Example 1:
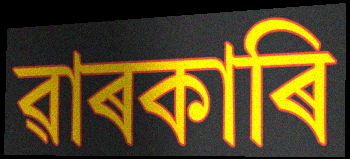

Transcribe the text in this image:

ৱাৰকাৰি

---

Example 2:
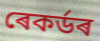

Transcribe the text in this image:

ৰেকৰ্ডৰ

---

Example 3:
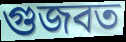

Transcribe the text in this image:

গুজবত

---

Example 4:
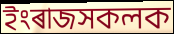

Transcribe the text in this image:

ইংৰাজসকলক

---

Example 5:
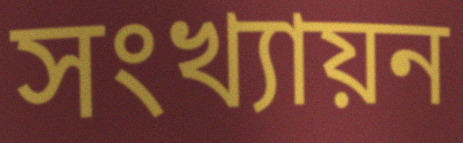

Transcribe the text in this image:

সংখ্যায়ন